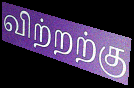
விற்றற்கு